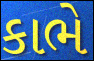
કાભે